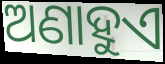
ଅଣାହୁଏ